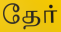
தேர்